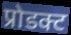
प्रोडक्ट